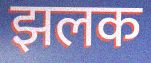
झलक